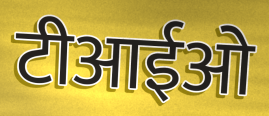
टीआईओ